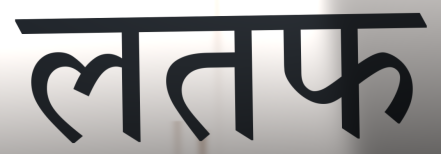
लतफ